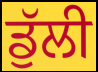
ਡੁੱਲੀ